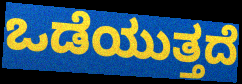
ಒಡೆಯುತ್ತದೆ